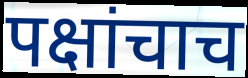
पक्षांचाच